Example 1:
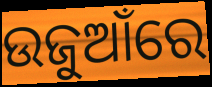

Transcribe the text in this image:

ଉଜୁଆଁରେ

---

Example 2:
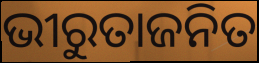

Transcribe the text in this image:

ଭୀରୁତାଜନିତ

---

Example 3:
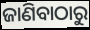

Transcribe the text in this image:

ଜାଣିବାଠାରୁ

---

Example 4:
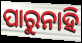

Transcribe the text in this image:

ପାରୁନାହି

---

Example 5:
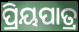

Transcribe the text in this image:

ପ୍ରିୟପାତ୍ର